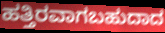
ಹತ್ತಿರವಾಗಬಹುದಾದ